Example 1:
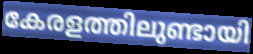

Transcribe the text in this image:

കേരളത്തിലുണ്ടായി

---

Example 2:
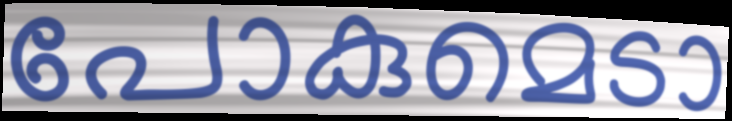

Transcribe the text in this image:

പോകുമെടാ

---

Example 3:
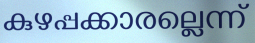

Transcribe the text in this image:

കുഴപ്പക്കാരല്ലെന്ന്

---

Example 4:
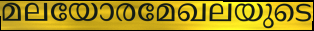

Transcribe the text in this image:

മലയോരമേഖലയുടെ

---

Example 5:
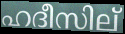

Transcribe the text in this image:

ഹദീസില്